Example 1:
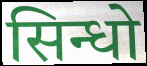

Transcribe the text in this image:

सिन्धो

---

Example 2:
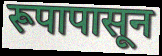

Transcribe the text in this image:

रूपापासून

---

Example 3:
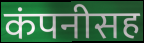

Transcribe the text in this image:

कंपनीसह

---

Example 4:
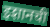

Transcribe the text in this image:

इशानची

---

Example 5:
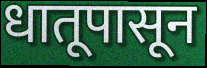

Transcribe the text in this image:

धातूपासून